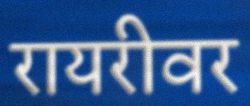
रायरीवर